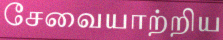
சேவையாற்றிய